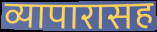
व्यापारासह